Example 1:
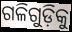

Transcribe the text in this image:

ଗଳିଗୁଡ଼ିକୁ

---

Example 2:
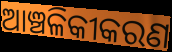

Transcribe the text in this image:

ଆଞ୍ଚଳିକୀକରଣ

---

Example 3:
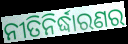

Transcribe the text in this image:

ନୀତିନିର୍ଦ୍ଧାରଣର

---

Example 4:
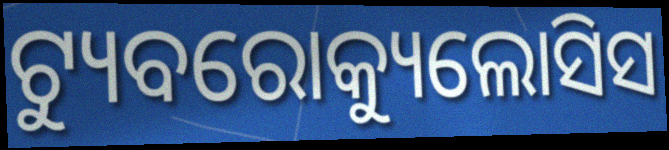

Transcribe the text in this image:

ଟ୍ୟୁବରୋକ୍ୟୁଲୋସିସ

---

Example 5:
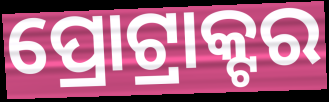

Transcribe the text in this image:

ପ୍ରୋଟ୍ରାକ୍ଟର